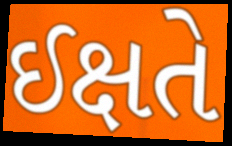
ઈક્ષતે